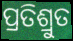
ପ୍ରତିଶ୍ରୁତ